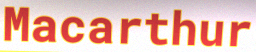
Macarthur